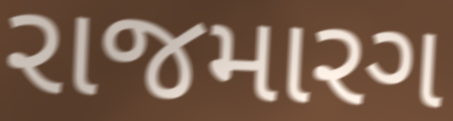
રાજમારગ